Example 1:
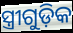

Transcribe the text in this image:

ସ୍ତ୍ରୀଗୁଡ଼ିକ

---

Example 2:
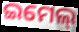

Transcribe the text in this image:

ଇମେଲ୍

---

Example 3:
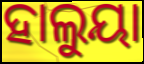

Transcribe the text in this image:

ହାଲୁୟା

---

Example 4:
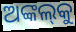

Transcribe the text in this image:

ଅଙ୍କଲ୍‌କୁ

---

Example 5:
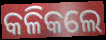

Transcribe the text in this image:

କଳିକଲେ